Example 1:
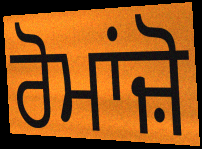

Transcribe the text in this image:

ਰੋਮਾਂਜ਼ੋ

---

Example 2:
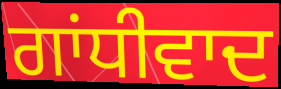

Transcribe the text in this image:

ਗਾਂਧੀਵਾਦ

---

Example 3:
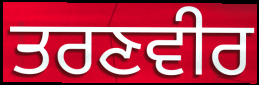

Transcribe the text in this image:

ਤਰਣਵੀਰ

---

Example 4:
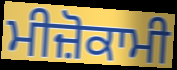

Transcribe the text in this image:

ਮੀਜ਼ੋਕਾਮੀ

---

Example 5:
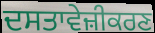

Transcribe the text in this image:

ਦਸਤਾਵੇਜ਼ੀਕਰਣ